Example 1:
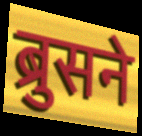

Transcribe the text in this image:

ब्रुसने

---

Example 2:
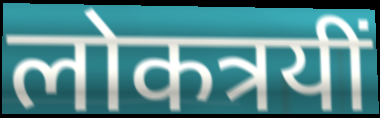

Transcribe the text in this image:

लोकत्रयीं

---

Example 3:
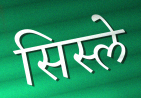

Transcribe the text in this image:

सिस्ले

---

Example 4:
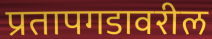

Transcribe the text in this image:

प्रतापगडावरील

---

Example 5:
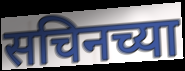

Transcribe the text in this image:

सचिनच्या